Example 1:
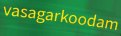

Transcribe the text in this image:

vasagarkoodam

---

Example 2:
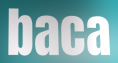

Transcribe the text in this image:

baca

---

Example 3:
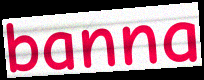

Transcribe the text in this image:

banna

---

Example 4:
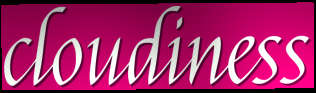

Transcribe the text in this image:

cloudiness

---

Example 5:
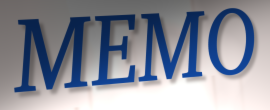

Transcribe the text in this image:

MEMO